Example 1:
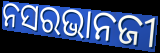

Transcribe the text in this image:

ନସରଭାନଜୀ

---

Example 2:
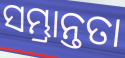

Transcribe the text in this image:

ସମ୍ଭ୍ରାନ୍ତତା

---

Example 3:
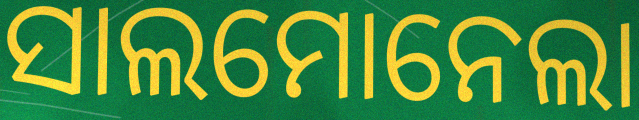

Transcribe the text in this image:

ସାଲମୋନେଲା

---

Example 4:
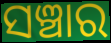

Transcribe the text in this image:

ସଞ୍ଚାର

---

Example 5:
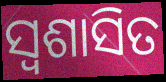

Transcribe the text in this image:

ସ୍ୱଶାସିତ